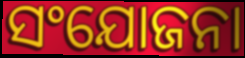
ସଂଯୋଜନା